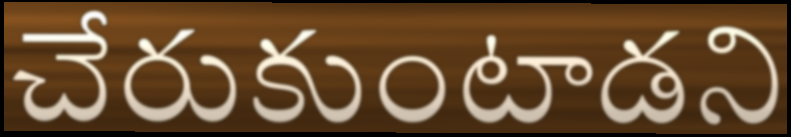
చేరుకుంటాడని